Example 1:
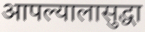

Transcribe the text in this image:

आपल्यालासुद्धा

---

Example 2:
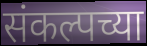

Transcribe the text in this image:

संकल्पच्या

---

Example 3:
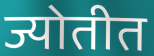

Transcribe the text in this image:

ज्योतीत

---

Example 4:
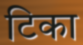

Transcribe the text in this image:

टिका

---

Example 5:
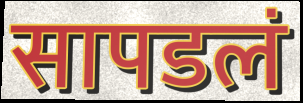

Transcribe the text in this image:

सापडलं